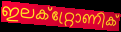
ഇലക്റ്റ്രോണിക്